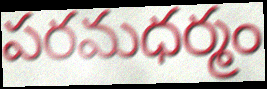
పరమధర్మం